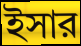
ইসার